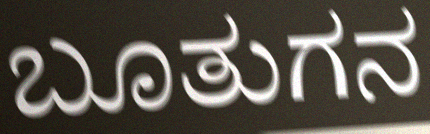
ಬೂತುಗನ